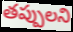
తప్పులని